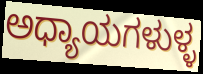
ಅಧ್ಯಾಯಗಳುಳ್ಳ